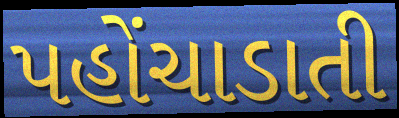
પહોંચાડાતી